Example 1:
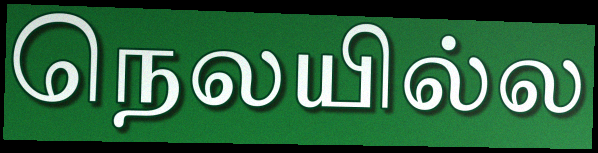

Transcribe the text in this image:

நெலயில்ல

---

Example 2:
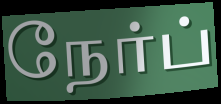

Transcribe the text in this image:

நேர்ப்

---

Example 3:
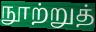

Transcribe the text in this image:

நூற்றுத்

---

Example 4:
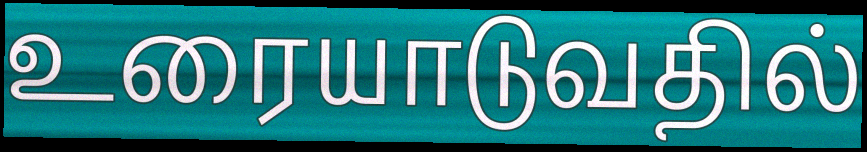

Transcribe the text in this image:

உரையாடுவதில்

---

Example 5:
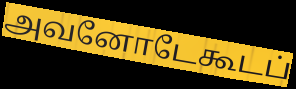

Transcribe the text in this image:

அவனோடேகூடப்